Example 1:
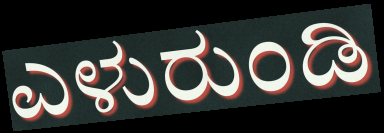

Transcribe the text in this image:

ಎಳುರುಂಡಿ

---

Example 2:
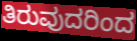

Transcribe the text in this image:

ತಿರುವುದರಿಂದ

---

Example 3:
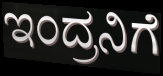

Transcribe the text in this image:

ಇಂದ್ರನಿಗೆ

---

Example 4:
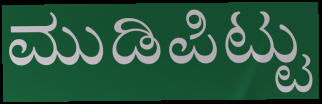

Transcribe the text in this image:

ಮುಡಿಪಿಟ್ಟು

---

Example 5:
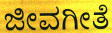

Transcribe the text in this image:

ಜೀವಗೀತೆ